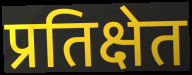
प्रतिक्षेत